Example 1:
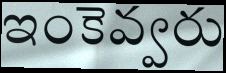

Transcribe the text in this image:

ఇంకెవ్వరు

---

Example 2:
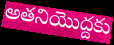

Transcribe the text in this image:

అతనియొద్దకు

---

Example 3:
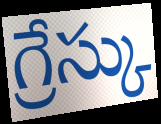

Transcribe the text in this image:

గ్రేస్కు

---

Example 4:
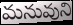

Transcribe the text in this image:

మనువుని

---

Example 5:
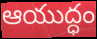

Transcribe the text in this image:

ఆయుద్ధం